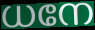
ധനേ